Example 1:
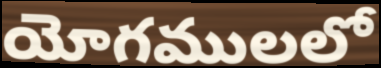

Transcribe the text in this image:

యోగములలో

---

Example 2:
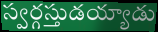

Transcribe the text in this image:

స్వర్గస్తుడయ్యాడు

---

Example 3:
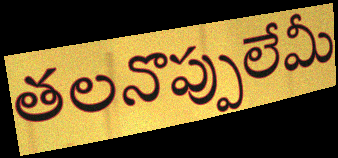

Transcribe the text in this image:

తలనొప్పులేమీ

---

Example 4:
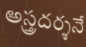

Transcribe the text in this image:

అస్త్రదర్శనే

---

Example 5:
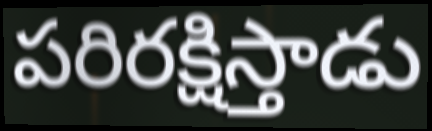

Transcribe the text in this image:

పరిరక్షిస్తాడు